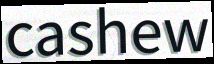
cashew